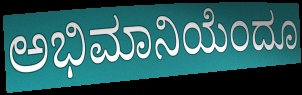
ಅಭಿಮಾನಿಯೆಂದೂ